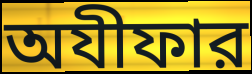
অযীফার